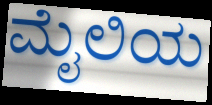
ಮೈಲಿಯ